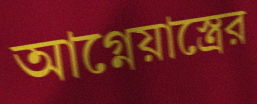
আগ্নেয়াস্ত্রের